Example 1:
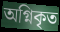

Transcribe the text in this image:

অগ্নিকৃত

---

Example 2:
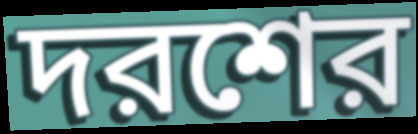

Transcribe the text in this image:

দরশের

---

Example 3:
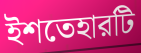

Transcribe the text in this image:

ইশতেহারটি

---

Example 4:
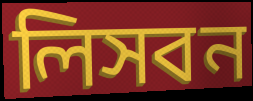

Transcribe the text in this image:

লিসবন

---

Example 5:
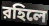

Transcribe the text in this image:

রহিলে